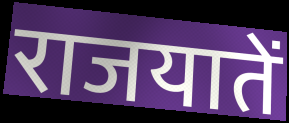
राजयातें